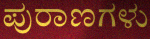
ಪುರಾಣಗಳು